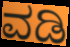
ವಡಿ